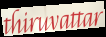
thiruvattar